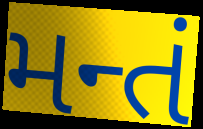
મન્તં